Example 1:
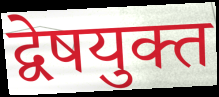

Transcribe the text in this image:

द्वेषयुक्त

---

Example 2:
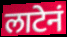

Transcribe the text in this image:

लाटेनं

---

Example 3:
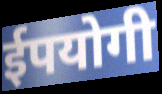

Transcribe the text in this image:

ईपयोगी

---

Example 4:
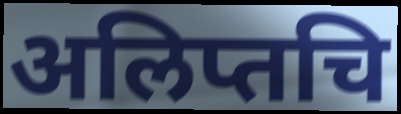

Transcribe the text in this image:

अलिप्तचि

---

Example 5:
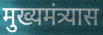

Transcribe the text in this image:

मुख्यमंत्र्यास